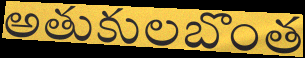
అతుకులబొంత